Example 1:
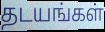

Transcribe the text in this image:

தடயங்கள்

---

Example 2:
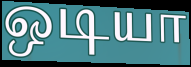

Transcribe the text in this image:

ஒடியா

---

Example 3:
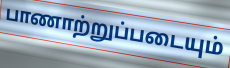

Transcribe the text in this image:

பாணாற்றுப்படையும்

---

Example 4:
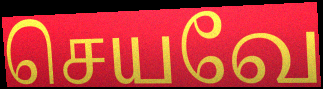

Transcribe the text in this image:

செயவே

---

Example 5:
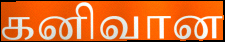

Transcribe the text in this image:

கனிவான